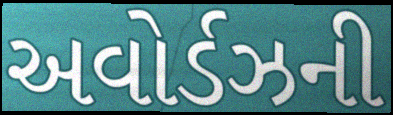
અવોર્ડઝની